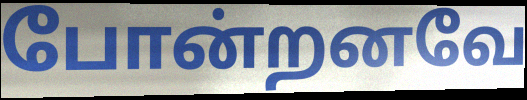
போன்றனவே